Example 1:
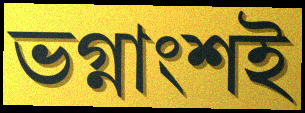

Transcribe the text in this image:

ভগ্নাংশই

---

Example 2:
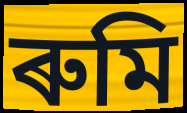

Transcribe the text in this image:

ৰুমি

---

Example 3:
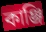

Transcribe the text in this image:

কাঞ্জি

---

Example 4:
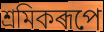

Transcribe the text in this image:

শ্ৰমিকৰূপে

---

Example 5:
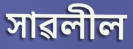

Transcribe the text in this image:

সাৱলীল